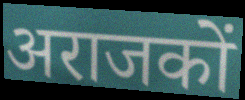
अराजकों